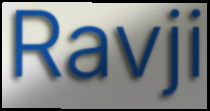
Ravji